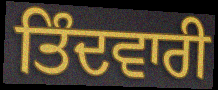
ਤਿੰਦਵਾਰੀ